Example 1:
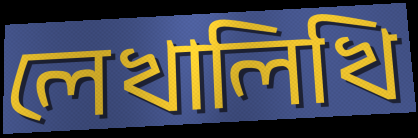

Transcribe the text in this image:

লেখালিখি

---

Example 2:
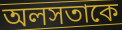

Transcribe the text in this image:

অলসতাকে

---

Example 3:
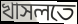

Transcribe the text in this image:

খাসলতে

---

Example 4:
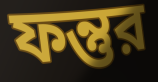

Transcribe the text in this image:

ফন্তুর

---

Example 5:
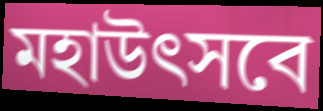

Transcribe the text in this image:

মহাউৎসবে